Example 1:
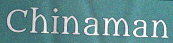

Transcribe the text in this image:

Chinaman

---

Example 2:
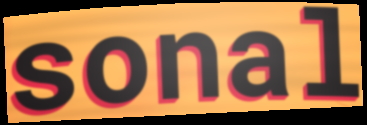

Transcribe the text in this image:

sonal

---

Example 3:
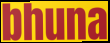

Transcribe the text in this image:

bhuna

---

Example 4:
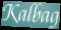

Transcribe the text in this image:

Kalbag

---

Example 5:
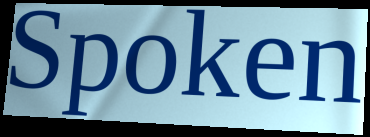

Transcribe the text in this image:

Spoken